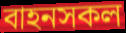
বাহনসকল